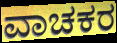
ವಾಚಕರ